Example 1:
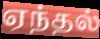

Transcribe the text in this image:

ஏந்தல்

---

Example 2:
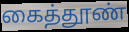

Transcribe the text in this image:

கைத்தூண்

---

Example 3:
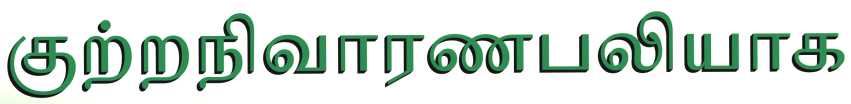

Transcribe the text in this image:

குற்றநிவாரணபலியாக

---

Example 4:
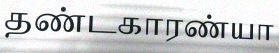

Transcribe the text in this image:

தண்டகாரண்யா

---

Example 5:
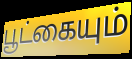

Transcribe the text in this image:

பூட்கையும்